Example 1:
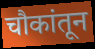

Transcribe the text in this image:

चौकांतून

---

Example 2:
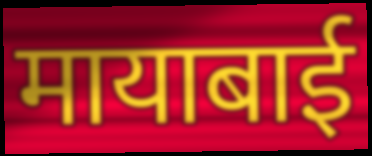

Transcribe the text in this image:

मायाबाई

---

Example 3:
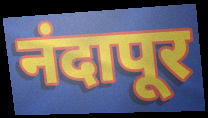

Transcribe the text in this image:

नंदापूर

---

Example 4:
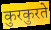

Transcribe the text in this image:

कुरकुरते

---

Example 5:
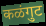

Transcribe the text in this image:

कळंगुट